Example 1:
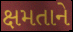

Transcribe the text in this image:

ક્ષમતાને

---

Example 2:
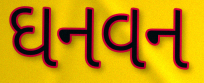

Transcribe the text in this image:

ઘનવન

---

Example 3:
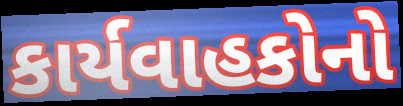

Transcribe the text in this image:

કાર્યવાહકોનો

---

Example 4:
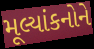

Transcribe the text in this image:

મૂલ્યાંકનોને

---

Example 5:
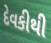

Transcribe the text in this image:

દેવકીથી